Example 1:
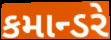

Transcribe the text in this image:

કમાન્ડરે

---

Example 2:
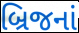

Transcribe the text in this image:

બ્રિજનાં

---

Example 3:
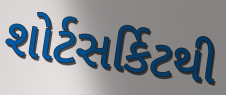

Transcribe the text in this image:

શોર્ટસર્કિટથી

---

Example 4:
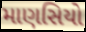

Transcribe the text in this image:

માણસિયો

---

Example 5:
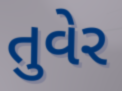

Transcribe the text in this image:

તુવેર